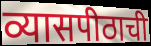
व्यासपीठाची